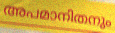
അപമാനിതനും